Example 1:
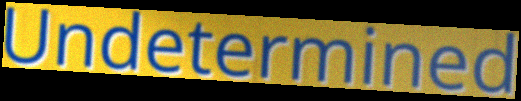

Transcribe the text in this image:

Undetermined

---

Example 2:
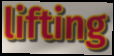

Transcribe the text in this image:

lifting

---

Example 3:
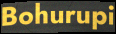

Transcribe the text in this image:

Bohurupi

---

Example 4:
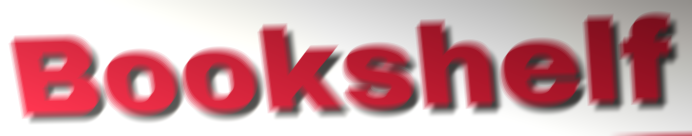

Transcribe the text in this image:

Bookshelf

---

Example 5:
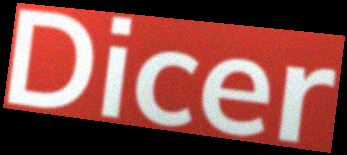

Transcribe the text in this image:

Dicer